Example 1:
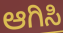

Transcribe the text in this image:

ಆಗಿಸಿ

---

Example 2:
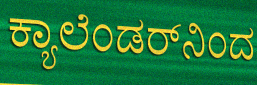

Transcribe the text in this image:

ಕ್ಯಾಲೆಂಡರ್‌ನಿಂದ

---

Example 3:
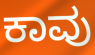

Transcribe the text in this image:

ಕಾವು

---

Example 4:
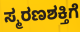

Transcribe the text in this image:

ಸ್ಮರಣಶಕ್ತಿಗೆ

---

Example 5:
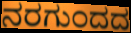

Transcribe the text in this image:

ನರಗುಂದದ